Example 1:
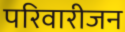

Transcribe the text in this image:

परिवारीजन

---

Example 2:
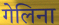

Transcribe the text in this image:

गेलिना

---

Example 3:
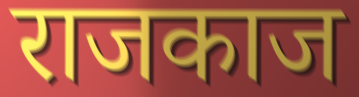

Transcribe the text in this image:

राजकाज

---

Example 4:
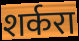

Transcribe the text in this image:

शर्करा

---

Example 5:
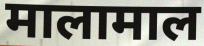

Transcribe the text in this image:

मालामाल